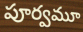
పూర్వమూ